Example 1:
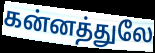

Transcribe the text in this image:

கன்னத்துலே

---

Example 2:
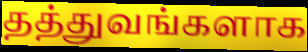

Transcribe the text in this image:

தத்துவங்களாக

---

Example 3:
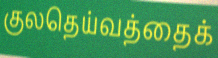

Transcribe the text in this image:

குலதெய்வத்தைக்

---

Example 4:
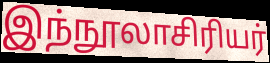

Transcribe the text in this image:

இந்நூலாசிரியர்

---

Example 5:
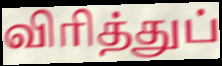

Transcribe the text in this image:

விரித்துப்